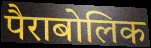
पैराबोलिक